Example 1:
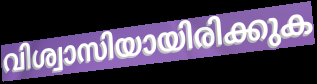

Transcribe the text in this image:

വിശ്വാസിയായിരിക്കുക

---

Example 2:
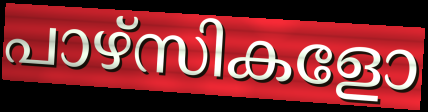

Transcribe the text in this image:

പാഴ്സികളോ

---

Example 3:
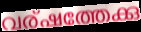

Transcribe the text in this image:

വര്ഷത്തേക്കു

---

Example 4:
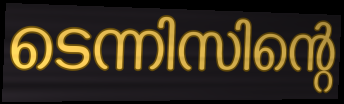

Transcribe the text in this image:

ടെന്നിസിന്റെ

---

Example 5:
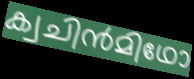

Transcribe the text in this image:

ക്വചിൻമിഥോ